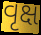
વૃક્ષ